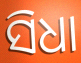
ସିଧା